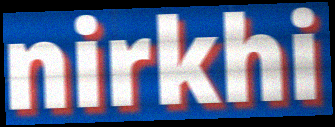
nirkhi